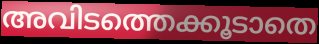
അവിടത്തെക്കൂടാതെ